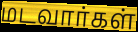
மடவார்கள்